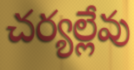
చర్యల్లేవు